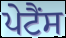
ਪੇਟੈਂਸ